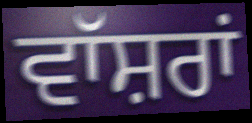
ਵਾੱਸ਼ਰਾਂ